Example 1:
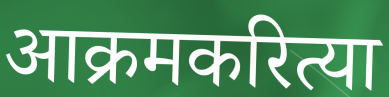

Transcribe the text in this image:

आक्रमकरित्या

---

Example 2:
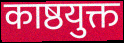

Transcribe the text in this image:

काष्ठयुक्त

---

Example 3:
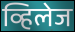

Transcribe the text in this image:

व्हिलेज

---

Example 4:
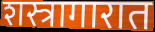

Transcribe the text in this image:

शस्त्रागारात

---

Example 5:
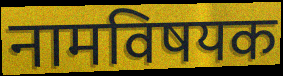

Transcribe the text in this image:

नामविषयक